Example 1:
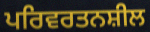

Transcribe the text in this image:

ਪਰਿਵਰਤਨਸ਼ੀਲ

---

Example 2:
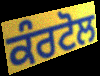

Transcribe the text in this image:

ਕੰਰਟੋਲ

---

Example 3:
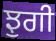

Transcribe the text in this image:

ਝੁਗੀ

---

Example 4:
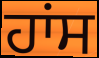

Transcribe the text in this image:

ਹਾਂਸ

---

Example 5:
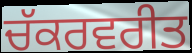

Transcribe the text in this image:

ਚੱਕਰਵਰੀਤ